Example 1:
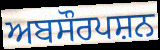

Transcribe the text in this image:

ਅਬਸੌਰਪਸ਼ਨ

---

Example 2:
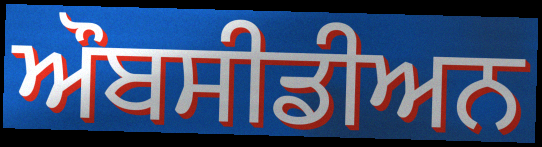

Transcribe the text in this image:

ਔਬਸੀਡੀਅਨ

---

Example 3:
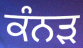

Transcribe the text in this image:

ਕੰਨਡ਼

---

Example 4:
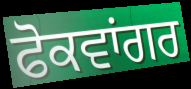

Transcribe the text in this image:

ਫੋਕਵਾਂਗਰ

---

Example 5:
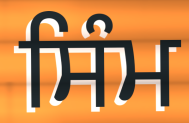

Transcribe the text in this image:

ਸਿੰਮ